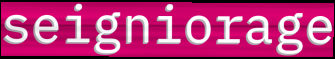
seigniorage